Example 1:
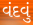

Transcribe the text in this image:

વંદવું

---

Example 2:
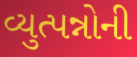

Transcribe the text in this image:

વ્યુત્પન્નોની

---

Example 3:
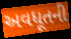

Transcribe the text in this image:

અવધૂતની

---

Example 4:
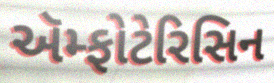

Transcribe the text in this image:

ઍમ્ફોટેરિસિન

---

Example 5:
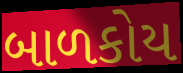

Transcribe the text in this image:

બાળકોય